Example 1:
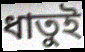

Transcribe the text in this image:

ধাতুই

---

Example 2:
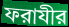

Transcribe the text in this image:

ফরাযীর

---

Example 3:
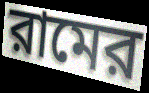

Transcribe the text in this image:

রামের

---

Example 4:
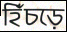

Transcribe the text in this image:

হিঁচড়ে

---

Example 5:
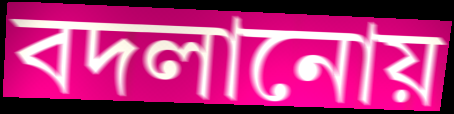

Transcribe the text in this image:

বদলানোয়